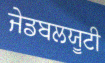
ਜੇਡਬਲਯੂਟੀ